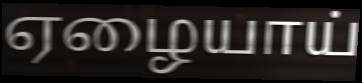
ஏழையாய்